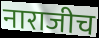
नाराजीच